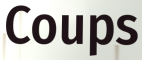
Coups